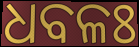
ଧବଳଃ